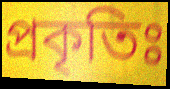
প্রকৃতিঃ